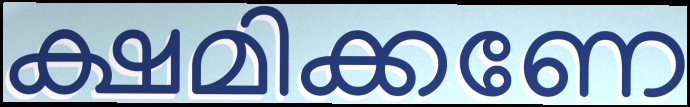
ക്ഷമിക്കണേ